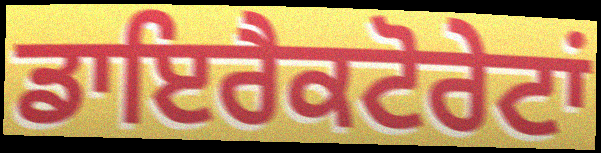
ਡਾਇਰੈਕਟੋਰੇਟਾਂ